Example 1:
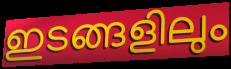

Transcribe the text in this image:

ഇടങ്ങളിലും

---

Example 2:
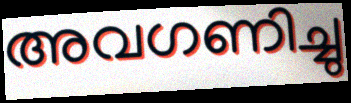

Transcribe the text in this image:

അവഗണിച്ചു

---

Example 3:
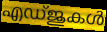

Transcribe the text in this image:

എഡ്ജുകൾ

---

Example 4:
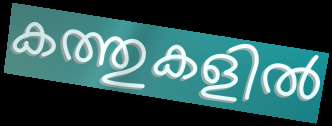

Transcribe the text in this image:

കത്തുകളിൽ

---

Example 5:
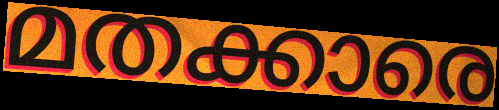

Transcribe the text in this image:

മതക്കാരെ